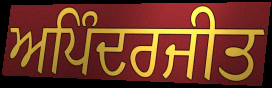
ਅਪਿੰਦਰਜੀਤ